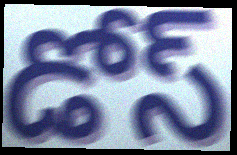
డోస్